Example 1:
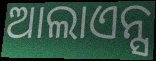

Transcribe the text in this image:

ଆଲାଏନ୍ସ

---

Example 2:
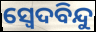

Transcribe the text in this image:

ସ୍ୱେଦବିନ୍ଦୁ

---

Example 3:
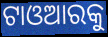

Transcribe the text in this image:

ଟାଓଆରକୁ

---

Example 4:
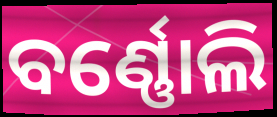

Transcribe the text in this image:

ବର୍ଣ୍ଣୋଲି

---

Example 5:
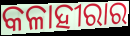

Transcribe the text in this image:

କଳାହୀରାର